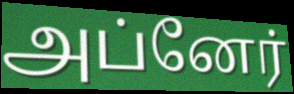
அப்னேர்